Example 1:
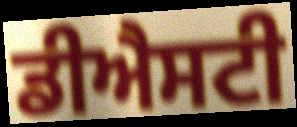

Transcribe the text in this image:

ਡੀਐਸਟੀ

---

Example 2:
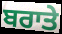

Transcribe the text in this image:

ਬਰਾਤੇ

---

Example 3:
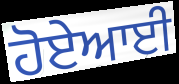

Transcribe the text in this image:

ਹੋਏਆਈ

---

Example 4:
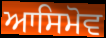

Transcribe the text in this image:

ਆਸਿਮੋਵ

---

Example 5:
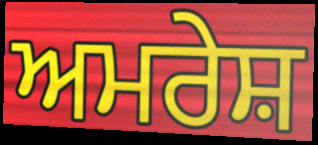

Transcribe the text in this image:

ਅਮਰੇਸ਼